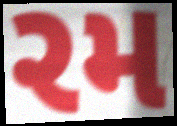
રમ